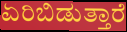
ಏರಿಬಿಡುತ್ತಾರೆ